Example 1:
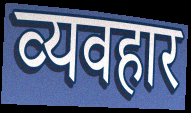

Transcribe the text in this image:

व्‍यवहार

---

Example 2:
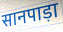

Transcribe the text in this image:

सानपाड़ा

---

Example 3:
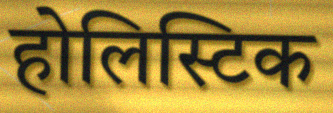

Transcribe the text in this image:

होलिस्टिक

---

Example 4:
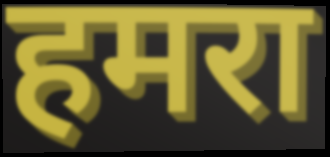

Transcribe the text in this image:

हमरा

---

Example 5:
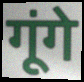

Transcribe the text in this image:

गूंगे